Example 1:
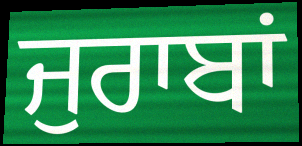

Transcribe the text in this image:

ਜੁਰਾਬਾਂ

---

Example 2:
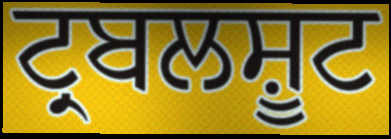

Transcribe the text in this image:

ਟ੍ਰਬਲਸ਼ੂਟ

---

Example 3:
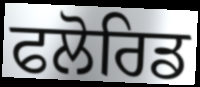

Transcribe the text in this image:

ਫਲੋਰਿਡ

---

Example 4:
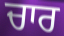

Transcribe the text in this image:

ਚਾਰ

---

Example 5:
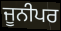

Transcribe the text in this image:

ਜੂਨੀਪਰ